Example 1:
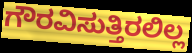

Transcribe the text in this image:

ಗೌರವಿಸುತ್ತಿರಲಿಲ್ಲ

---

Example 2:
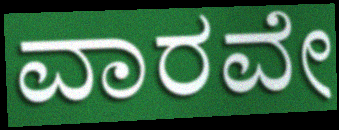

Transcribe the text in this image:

ವಾರವೇ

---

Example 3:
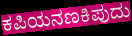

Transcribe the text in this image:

ಕಪಿಯನಣಕಿಪುದು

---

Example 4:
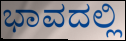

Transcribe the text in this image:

ಭಾವದಲ್ಲಿ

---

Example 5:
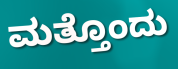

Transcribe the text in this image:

ಮತ್ತೊಂದು